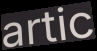
artic